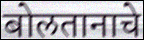
बोलतानाचे